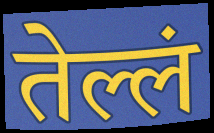
तेल्लं